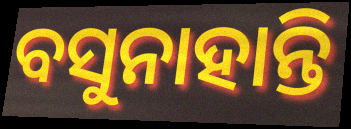
ବସୁନାହାନ୍ତି